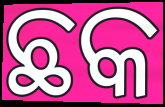
ଛକ